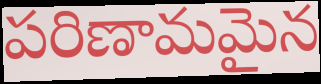
పరిణామమైన